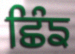
ਛਿੰਙ